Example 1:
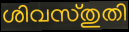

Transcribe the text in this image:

ശിവസ്തുതി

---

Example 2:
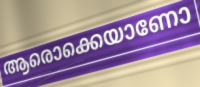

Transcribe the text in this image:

ആരൊക്കെയാണോ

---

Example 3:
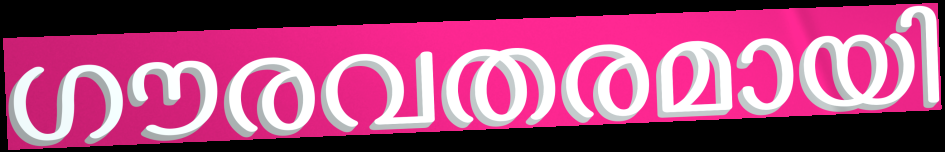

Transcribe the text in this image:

ഗൗരവതരമായി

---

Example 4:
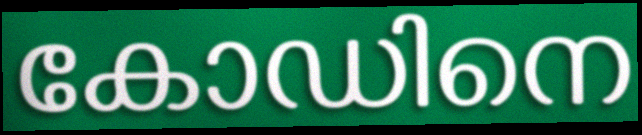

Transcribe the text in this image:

കോഡിനെ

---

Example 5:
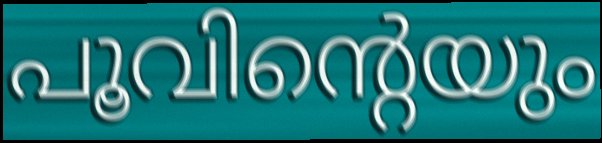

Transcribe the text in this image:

പൂവിന്റെയും